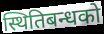
स्थितिबन्धको